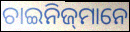
ଚାଇନିଜ୍‍ମାନେ